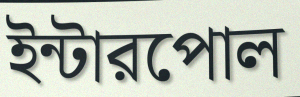
ইন্টারপোল